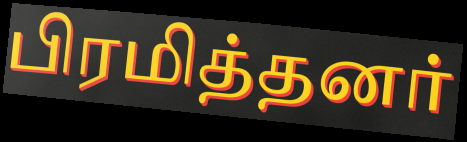
பிரமித்தனர்